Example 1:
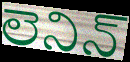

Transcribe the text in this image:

లెనిన్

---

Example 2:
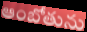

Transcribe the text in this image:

ఆంబోతును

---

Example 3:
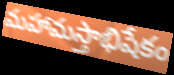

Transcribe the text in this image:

మహామస్తాభిషేకం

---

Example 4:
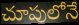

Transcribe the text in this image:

చూపులోనే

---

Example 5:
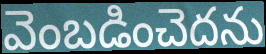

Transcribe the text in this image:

వెంబడించెదను